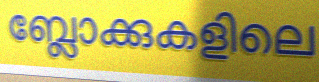
ബ്ലോക്കുകളിലെ